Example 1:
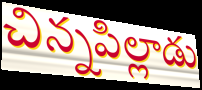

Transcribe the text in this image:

చిన్నపిల్లాడు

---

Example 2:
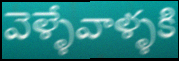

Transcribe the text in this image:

వెళ్ళేవాళ్ళకి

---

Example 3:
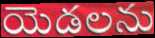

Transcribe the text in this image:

యెడలను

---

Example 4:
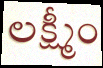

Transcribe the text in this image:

లక్ష్మీం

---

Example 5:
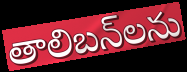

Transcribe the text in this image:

తాలిబన్‌లను